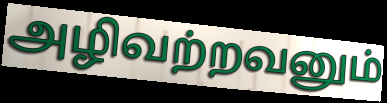
அழிவற்றவனும்